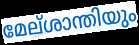
മേല്ശാന്തിയും